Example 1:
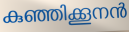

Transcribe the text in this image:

കുഞ്ഞിക്കൂനൻ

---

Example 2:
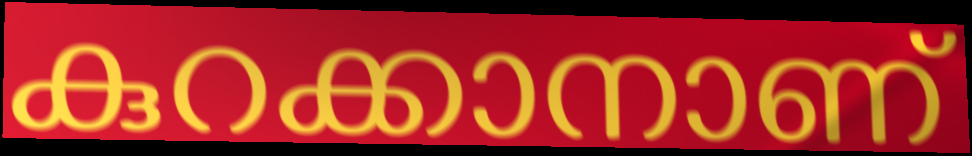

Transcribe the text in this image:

കുറക്കാനാണ്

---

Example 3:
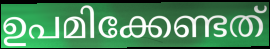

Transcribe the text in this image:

ഉപമിക്കേണ്ടത്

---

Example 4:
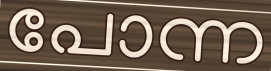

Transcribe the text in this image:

പോന്ന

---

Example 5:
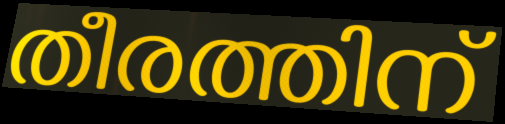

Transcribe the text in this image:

തീരത്തിന്